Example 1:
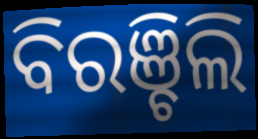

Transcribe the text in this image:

ବିରଞ୍ଚିଲି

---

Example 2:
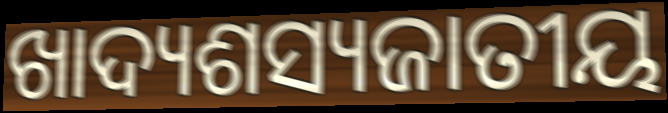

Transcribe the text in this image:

ଖାଦ୍ୟଶସ୍ୟଜାତୀୟ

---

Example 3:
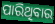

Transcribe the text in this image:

ପାରିଥିବାର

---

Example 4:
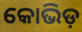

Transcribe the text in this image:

କୋଭିଡ଼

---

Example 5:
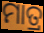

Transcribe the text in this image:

ମାତ୍ର